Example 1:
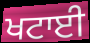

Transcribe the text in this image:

ਖਟਾਈ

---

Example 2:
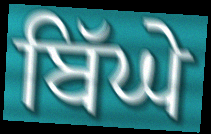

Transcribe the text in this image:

ਬਿੱਘੇ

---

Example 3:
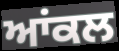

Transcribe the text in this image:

ਆਂਕਲ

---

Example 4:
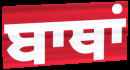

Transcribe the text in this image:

ਬਾਥਾਂ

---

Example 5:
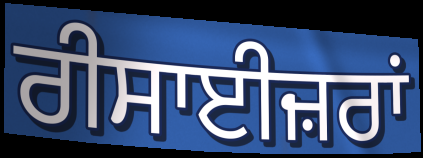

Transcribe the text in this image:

ਰੀਸਾਈਜ਼ਰਾਂ